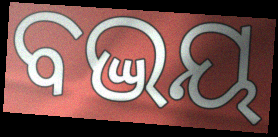
ବଦ୍ଭୟ